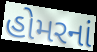
હોમરનાં